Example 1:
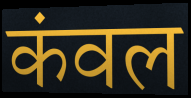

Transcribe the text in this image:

कंवल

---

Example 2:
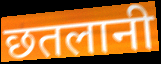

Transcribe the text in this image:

छतलानी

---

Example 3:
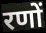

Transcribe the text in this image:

रणों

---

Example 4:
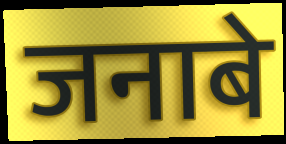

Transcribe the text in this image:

जनाबे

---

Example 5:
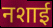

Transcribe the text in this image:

नशाई